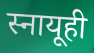
स्नायूही